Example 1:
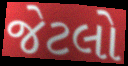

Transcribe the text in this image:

જેટલો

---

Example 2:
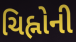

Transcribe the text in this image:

ચિહ્નોની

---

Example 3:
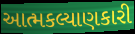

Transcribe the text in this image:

આત્મકલ્યાણકારી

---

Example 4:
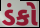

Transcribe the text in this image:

ડંકો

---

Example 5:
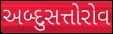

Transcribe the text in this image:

અબ્દુસત્તોરોવ